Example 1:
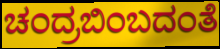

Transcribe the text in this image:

ಚಂದ್ರಬಿಂಬದಂತೆ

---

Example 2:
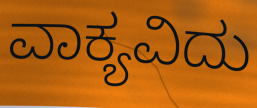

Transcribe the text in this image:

ವಾಕ್ಯವಿದು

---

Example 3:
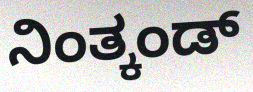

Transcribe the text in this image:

ನಿಂತ್ಕಂಡ್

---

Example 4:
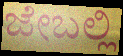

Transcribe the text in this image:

ಜೇಬಲ್ಲಿ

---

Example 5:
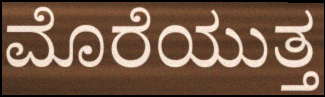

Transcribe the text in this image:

ಮೊರೆಯುತ್ತ